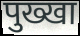
पुख्खा